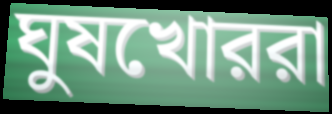
ঘুষখোররা